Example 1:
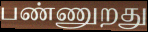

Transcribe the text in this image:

பண்ணுறது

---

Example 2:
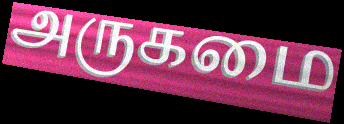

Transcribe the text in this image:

அருகமை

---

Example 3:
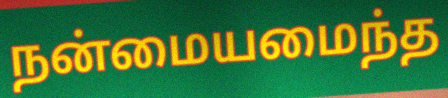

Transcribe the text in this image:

நன்மையமைந்த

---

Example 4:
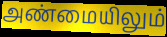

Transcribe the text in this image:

அண்மையிலும்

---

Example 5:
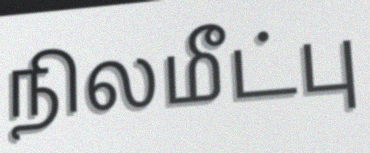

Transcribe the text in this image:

நிலமீட்பு